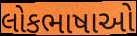
લોકભાષાઓ